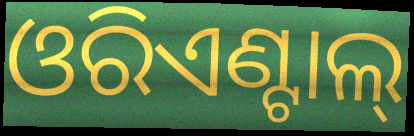
ଓରିଏଣ୍ଟାଲ୍